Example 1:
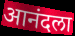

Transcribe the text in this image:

आनंदला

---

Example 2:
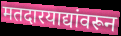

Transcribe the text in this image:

मतदारयाद्यांवरून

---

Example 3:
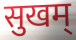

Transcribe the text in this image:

सुखम्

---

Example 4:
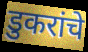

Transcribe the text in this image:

डुकरांचे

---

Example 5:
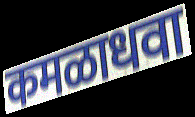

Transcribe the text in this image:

कमळाधवा